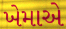
ખેમાએ